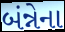
બંન્નેના